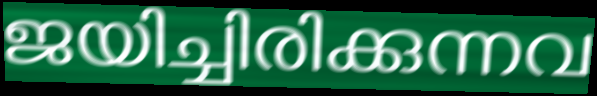
ജയിച്ചിരിക്കുന്നവ